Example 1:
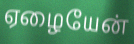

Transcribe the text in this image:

ஏழையேன்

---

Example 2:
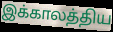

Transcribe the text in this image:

இக்காலத்திய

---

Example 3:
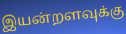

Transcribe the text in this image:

இயன்றளவுக்கு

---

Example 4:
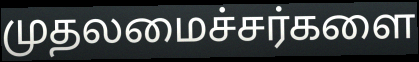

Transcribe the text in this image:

முதலமைச்சர்களை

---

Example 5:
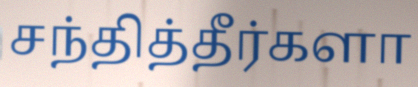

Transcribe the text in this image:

சந்தித்தீர்களா